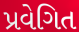
પ્રવેગિત